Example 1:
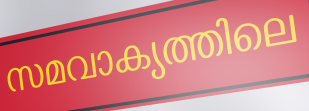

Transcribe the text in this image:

സമവാക്യത്തിലെ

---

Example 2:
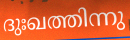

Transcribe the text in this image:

ദുഃഖത്തിന്നു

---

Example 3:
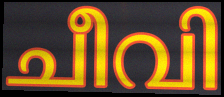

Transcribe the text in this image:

ചീവി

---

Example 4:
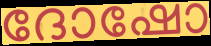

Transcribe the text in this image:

ദോഷോ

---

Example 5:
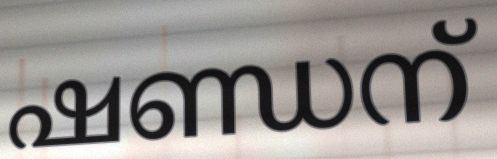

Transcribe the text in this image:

ഷണ്ഡന്